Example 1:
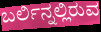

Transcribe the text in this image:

ಬರ್ಲಿನ್ನಲ್ಲಿರುವ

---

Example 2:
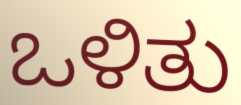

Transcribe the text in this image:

ಒಳಿತು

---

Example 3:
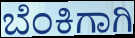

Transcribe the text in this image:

ಬೆಂಕಿಗಾಗಿ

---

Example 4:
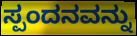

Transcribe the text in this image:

ಸ್ಪಂದನವನ್ನು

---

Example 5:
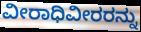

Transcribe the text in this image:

ವೀರಾಧಿವೀರರನ್ನು